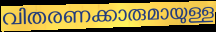
വിതരണക്കാരുമായുള്ള